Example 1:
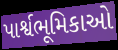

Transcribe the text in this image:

પાર્શ્વભૂમિકાઓ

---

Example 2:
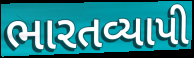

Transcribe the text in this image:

ભારતવ્યાપી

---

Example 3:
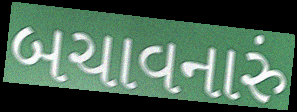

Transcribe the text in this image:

બચાવનારું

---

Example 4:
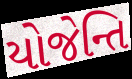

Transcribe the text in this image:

યોજેન્તિ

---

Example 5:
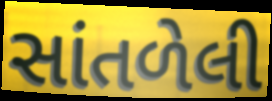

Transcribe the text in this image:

સાંતળેલી